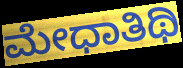
ಮೇಧಾತಿಥಿ